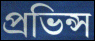
প্ৰভিন্স